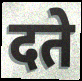
दते